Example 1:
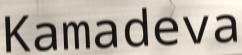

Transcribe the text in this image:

Kamadeva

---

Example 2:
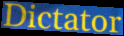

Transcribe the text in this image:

Dictator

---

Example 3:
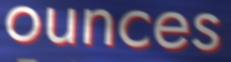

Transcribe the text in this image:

ounces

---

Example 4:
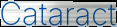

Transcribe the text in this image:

Cataract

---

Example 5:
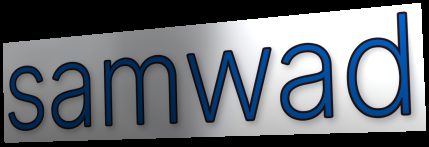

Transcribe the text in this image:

samwad